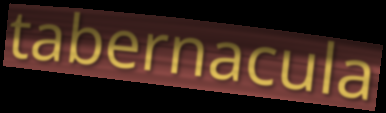
tabernacula